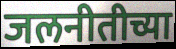
जलनीतीच्या